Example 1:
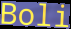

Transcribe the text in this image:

Boli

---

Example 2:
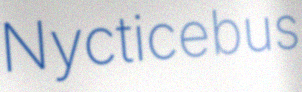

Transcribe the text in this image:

Nycticebus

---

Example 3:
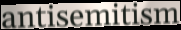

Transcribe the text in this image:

antisemitism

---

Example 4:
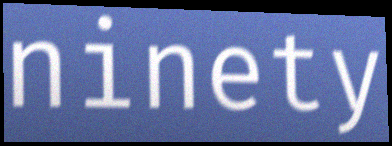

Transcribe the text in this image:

ninety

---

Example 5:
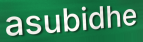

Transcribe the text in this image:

asubidhe